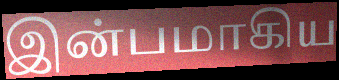
இன்பமாகிய